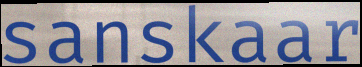
sanskaar